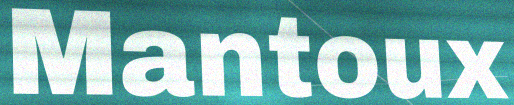
Mantoux